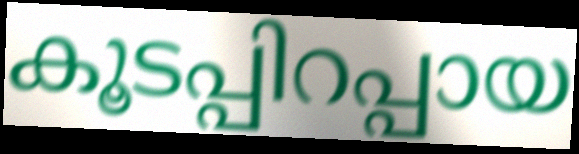
കൂടപ്പിറപ്പായ